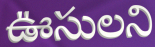
ఊసులని